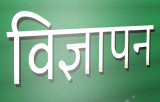
विज्ञापन